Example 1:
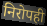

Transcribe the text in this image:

निरोपही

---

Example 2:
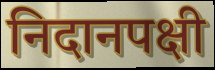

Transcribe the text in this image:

निदानपक्षी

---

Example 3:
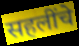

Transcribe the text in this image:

सहलींचे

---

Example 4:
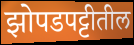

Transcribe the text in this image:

झोपडपट्टीतील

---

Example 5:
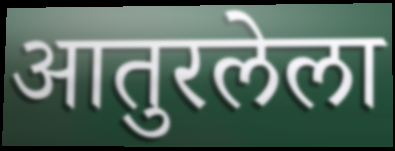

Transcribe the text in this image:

आतुरलेला